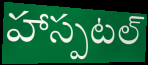
హాస్పటల్